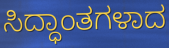
ಸಿದ್ಧಾಂತಗಳಾದ